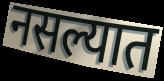
नसल्यात